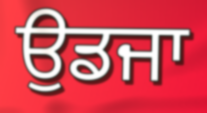
ਉਡਜਾ